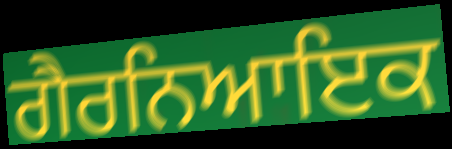
ਗੈਰਨਿਆਇਕ